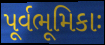
પૂર્વભૂમિકાઃ